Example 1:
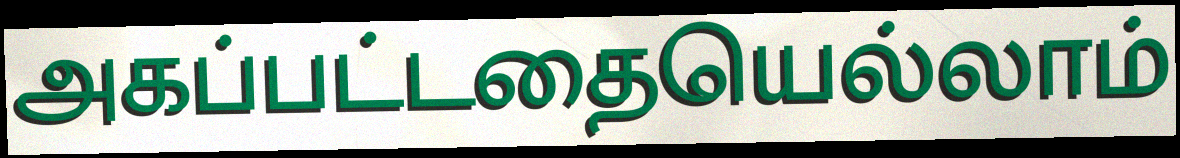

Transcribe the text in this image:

அகப்பட்டதையெல்லாம்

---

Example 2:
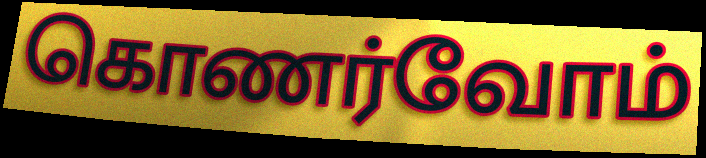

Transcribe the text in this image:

கொணர்வோம்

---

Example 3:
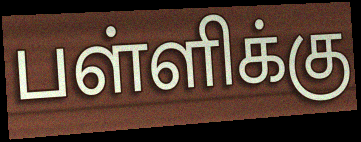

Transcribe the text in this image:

பள்ளிக்கு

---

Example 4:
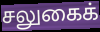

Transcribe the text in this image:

சலுகைக்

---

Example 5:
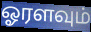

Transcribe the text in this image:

ஓரளவும்